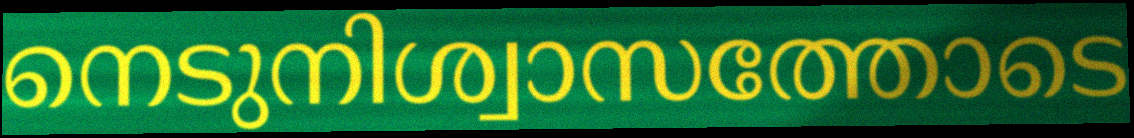
നെടുനിശ്വാസത്തോടെ